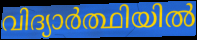
വിദ്യാർത്ഥിയിൽ